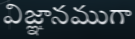
విజ్ఞానముగా